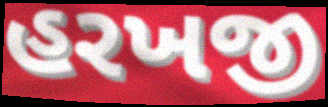
હરખજી